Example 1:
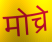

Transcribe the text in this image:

मोच्रे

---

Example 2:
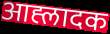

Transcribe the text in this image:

आह्लादक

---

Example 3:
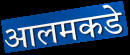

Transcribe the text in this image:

आलमकडे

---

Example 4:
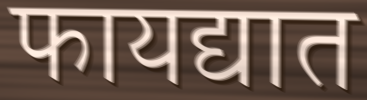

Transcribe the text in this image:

फायद्यात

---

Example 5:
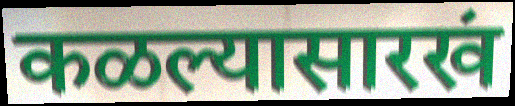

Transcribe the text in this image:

कळल्यासारखं